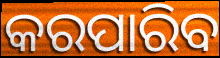
କରପାରିବ